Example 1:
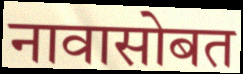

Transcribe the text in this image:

नावासोबत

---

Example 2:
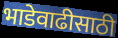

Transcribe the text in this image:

भाडेवाढीसाठी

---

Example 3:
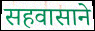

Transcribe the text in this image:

सहवासाने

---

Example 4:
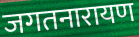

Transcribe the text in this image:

जगतनारायण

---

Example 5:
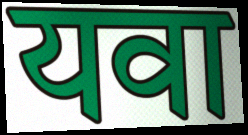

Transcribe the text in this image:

यवा